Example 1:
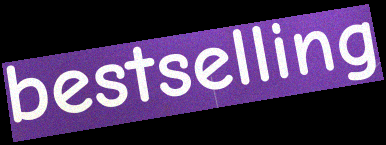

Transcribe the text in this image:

bestselling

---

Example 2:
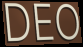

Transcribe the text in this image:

DEO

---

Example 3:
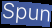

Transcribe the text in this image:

Spun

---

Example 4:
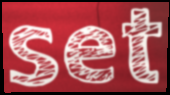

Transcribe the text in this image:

set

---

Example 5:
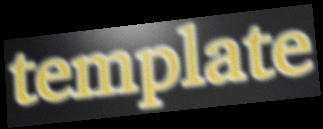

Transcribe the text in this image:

template